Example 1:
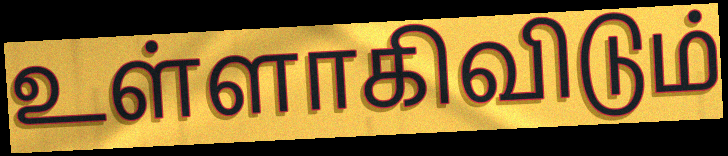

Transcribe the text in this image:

உள்ளாகிவிடும்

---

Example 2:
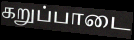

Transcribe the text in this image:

கறுப்பாடை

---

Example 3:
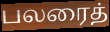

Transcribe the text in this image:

பலரைத்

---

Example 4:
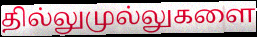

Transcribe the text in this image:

தில்லுமுல்லுகளை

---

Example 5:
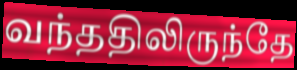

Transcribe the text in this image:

வந்ததிலிருந்தே